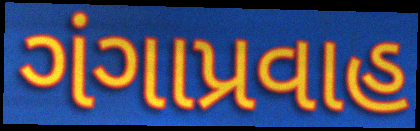
ગંગાપ્રવાહ